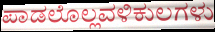
ಪಾಡಲೊಲ್ಲವಳಿಕುಲಗಳು